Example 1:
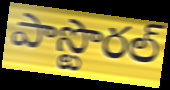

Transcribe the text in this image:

పాస్టొరల్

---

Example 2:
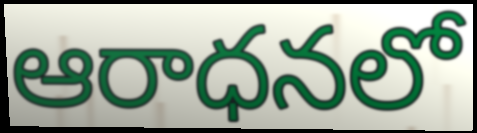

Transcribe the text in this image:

ఆరాధనలో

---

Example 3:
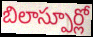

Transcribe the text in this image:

బిలాస్పూర్లో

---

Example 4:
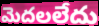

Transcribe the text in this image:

మెదలలేదు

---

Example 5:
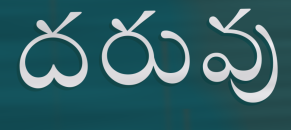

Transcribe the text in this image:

దరువు